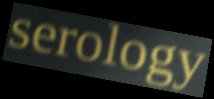
serology